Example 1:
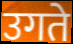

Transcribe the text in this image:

उगते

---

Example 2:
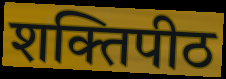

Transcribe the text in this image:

शक्तिपीठ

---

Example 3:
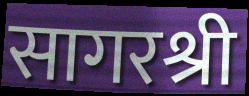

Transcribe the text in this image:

सागरश्री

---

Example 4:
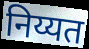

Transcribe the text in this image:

निय्यत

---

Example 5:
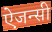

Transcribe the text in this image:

ऐजन्सी